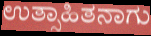
ಉತ್ಸಾಹಿತನಾಗು